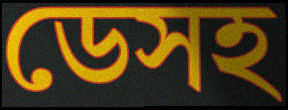
ডেসহ